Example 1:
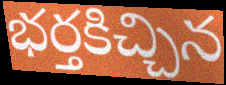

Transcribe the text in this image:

భర్తకిచ్చిన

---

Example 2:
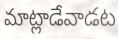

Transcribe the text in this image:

మాట్లాడేవాడట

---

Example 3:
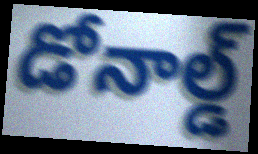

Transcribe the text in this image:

డోనాల్డ్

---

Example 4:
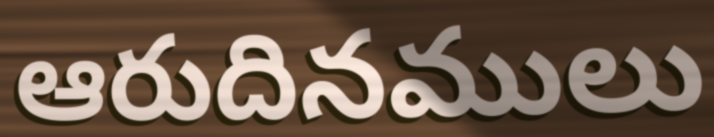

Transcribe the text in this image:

ఆరుదినములు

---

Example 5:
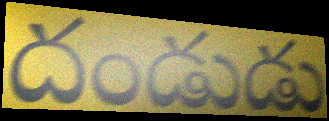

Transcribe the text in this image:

దండుడు